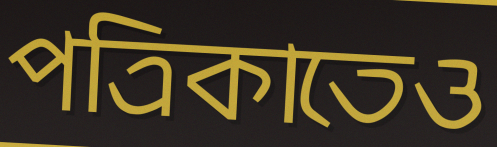
পত্রিকাতেও